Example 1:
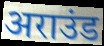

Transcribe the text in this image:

अराउंड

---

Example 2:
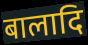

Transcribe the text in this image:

बालादि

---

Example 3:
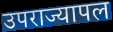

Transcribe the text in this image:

उपराज्यापल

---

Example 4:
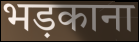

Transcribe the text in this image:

भड़काना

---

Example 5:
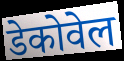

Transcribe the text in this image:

डेकोवेल